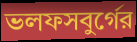
ভলফসবুর্গের